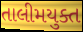
તાલીમયુક્ત